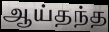
ஆய்தந்த